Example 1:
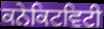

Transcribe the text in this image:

ਕਨੇਕਿਟਵਿਟੀ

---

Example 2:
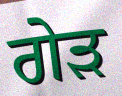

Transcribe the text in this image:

ਗੇੜ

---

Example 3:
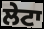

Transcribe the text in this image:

ਲੇਟਾ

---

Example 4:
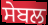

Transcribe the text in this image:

ਸੇਬਲ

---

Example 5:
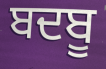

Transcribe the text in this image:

ਬਦਬੂ